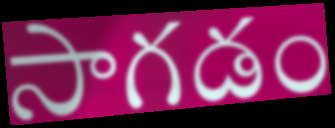
సాగడం